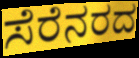
ಸೆರೆನರದ